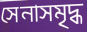
সেনাসমৃদ্ধ